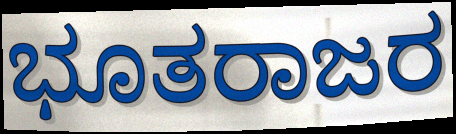
ಭೂತರಾಜರ